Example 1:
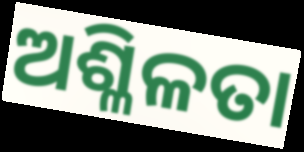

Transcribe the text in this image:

ଅଶ୍ଳିଳତା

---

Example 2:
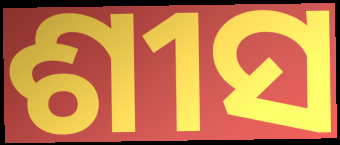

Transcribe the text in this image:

ଶୀସ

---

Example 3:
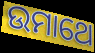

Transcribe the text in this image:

ଉମାଥେ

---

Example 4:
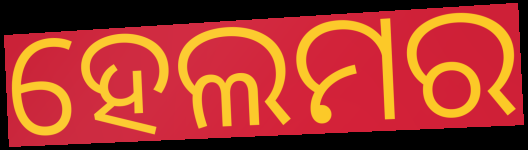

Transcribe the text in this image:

ହେଲମର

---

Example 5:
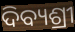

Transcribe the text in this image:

ଦିବ୍ୟଶ୍ରୀ